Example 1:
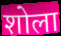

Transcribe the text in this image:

शोला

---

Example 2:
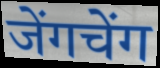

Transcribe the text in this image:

जेंगचेंग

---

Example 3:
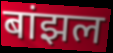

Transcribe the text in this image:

बांझल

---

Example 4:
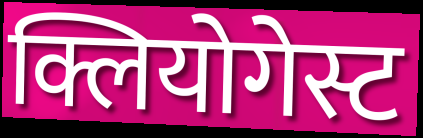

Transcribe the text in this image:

क्लियोगेस्ट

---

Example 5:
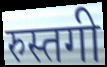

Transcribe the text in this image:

रुस्तगी